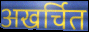
अखर्चित